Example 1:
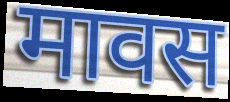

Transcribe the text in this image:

मावस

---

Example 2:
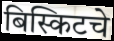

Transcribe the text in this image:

बिस्किटचे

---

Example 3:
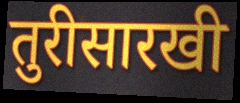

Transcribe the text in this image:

तुरीसारखी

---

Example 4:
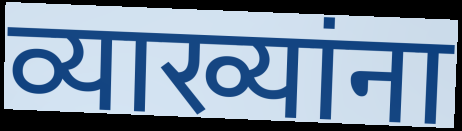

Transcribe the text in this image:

व्याख्यांना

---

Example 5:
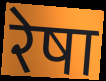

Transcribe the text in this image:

रेषा